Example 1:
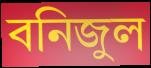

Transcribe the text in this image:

বনিজুল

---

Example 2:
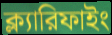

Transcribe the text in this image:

ক্ল্যারিফাইং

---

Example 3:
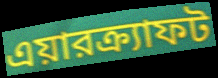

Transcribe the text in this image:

এয়ারক্র্যাফট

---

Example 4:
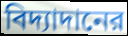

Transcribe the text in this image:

বিদ্যাদানের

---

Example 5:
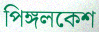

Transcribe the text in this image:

পিঙ্গলকেশ